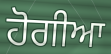
ਹੋਗੀਆ